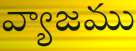
వ్యాజము